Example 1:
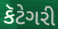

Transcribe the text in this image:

કૅટેગરી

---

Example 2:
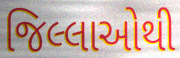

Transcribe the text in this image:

જિલ્લાઓથી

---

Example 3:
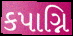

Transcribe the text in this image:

કપાગ્નિ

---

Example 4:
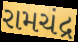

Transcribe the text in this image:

રામચંદ્ર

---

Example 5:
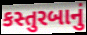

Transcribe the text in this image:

કસ્તુરબાનું